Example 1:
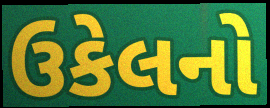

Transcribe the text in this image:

ઉકેલનો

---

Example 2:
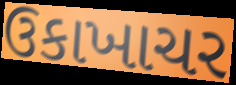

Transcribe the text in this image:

ઉકાખાચર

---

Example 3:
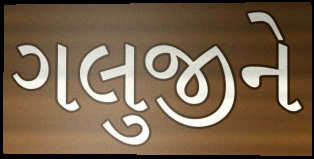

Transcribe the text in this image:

ગલુજીને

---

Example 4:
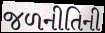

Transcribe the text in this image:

જળનીતિની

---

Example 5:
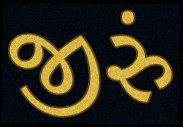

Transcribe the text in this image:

જીરું